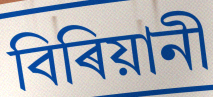
বিৰিয়ানী